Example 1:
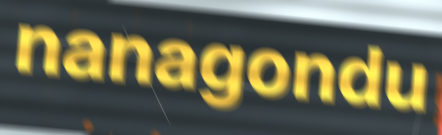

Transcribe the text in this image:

nanagondu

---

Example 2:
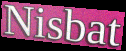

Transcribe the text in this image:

Nisbat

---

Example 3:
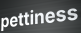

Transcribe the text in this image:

pettiness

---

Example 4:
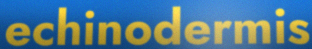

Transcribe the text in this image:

echinodermis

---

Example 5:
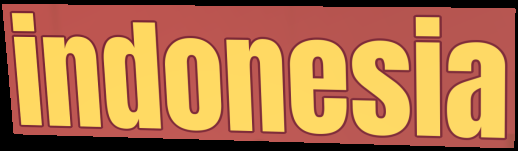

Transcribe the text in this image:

indonesia